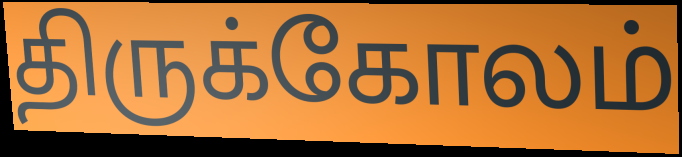
திருக்கோலம்